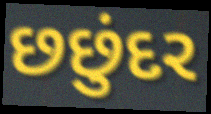
છછુંદર